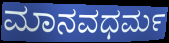
ಮಾನವಧರ್ಮ